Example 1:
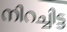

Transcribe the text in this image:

നിറച്ചിട്ട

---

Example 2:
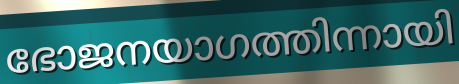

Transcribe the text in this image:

ഭോജനയാഗത്തിന്നായി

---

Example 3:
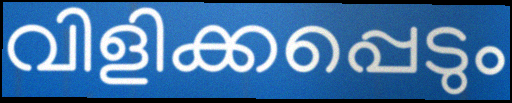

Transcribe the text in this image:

വിളിക്കപ്പെടും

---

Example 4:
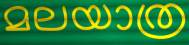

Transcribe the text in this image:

മലയാത്ര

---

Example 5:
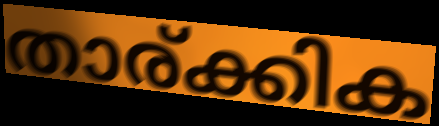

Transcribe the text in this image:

താര്ക്കിക